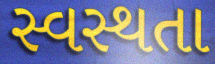
સ્વસ્થતા